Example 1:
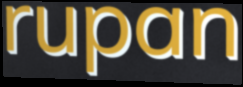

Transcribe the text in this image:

rupan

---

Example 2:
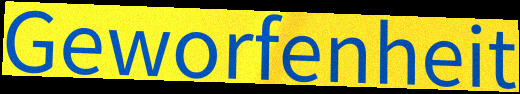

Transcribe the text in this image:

Geworfenheit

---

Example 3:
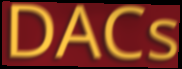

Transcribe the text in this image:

DACs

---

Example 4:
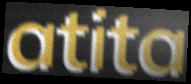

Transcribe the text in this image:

atita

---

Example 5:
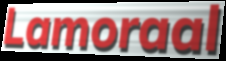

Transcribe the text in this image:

Lamoraal